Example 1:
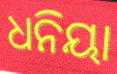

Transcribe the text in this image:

ଧନିୟା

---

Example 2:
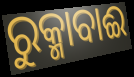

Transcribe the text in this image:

ରୁକ୍ମାବାଈ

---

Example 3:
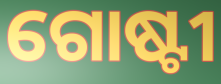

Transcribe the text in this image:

ଗୋଷ୍ଟୀ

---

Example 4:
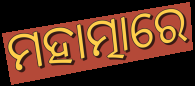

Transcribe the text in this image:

ମହାତ୍ମାରେ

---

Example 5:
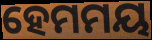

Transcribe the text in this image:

ହେମମୟ